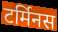
टर्मिनस